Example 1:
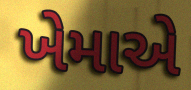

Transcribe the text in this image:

ખેમાએ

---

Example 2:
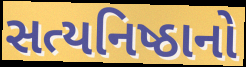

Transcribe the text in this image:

સત્યનિષ્ઠાનો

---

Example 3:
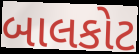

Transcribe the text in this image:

બાલકોટ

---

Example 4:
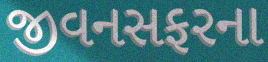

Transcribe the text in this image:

જીવનસફરના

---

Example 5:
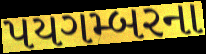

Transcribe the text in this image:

પયગમ્બરના